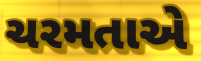
ચરમતાએ